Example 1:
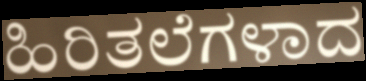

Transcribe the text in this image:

ಹಿರಿತಲೆಗಳಾದ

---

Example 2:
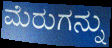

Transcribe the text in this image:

ಮೆರುಗನ್ನು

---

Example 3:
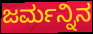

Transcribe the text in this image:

ಜರ್ಮನ್ನಿನ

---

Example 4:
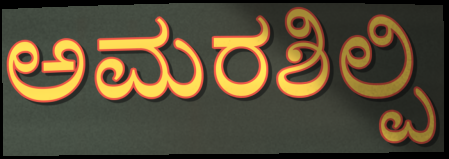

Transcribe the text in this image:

ಅಮರಶಿಲ್ಪಿ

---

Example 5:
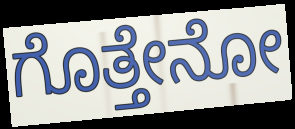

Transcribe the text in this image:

ಗೊತ್ತೇನೋ